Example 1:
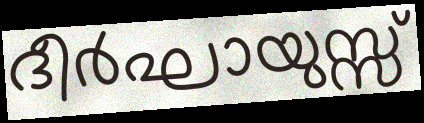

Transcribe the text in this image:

ദീർഘായുസ്സ്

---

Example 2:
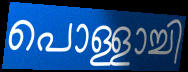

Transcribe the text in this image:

പൊള്ളാച്ചി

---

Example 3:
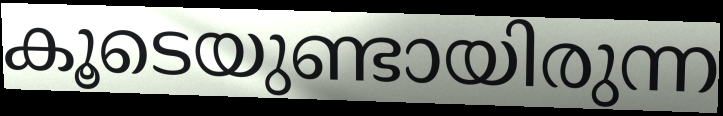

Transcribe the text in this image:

കൂടെയുണ്ടായിരുന്ന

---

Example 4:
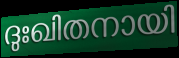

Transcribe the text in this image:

ദുഃഖിതനായി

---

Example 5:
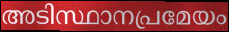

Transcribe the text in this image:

അടിസ്ഥാനപ്രമേയം